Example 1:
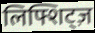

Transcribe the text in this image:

लिफ्शिट्ज़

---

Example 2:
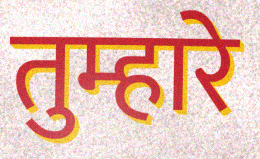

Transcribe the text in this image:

तुम्हारे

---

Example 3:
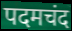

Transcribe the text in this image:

पदमचंद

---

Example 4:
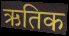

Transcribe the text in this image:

ऋतिक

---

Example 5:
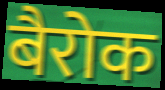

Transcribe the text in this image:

बैरोक